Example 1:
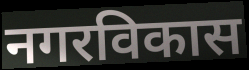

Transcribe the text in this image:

नगरविकास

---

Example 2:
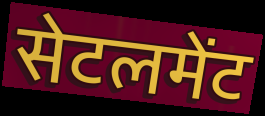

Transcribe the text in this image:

सेटलमेंट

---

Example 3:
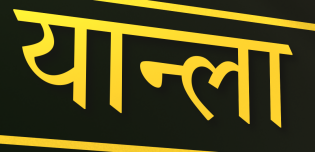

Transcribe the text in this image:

यान्ला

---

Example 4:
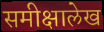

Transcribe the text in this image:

समीक्षालेख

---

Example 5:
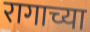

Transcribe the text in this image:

रागाच्या